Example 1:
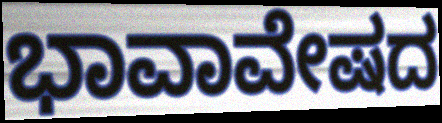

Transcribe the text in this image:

ಭಾವಾವೇಷದ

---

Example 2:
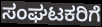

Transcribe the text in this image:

ಸಂಘಟಕರಿಗೆ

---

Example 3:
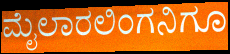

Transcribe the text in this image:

ಮೈಲಾರಲಿಂಗನಿಗೂ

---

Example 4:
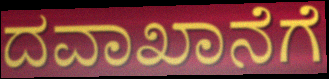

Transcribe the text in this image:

ದವಾಖಾನೆಗೆ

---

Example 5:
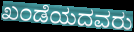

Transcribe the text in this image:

ಖಂಡೆಯದವರು